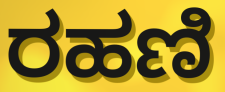
ರಹಣಿ